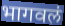
भागवलं